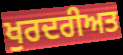
ਖੁਰਦਰੀਅਤ